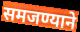
समजण्याने